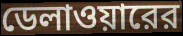
ডেলাওয়ারের